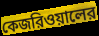
কেজরিওয়ালের